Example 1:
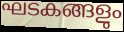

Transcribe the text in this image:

ഘടകങ്ങളും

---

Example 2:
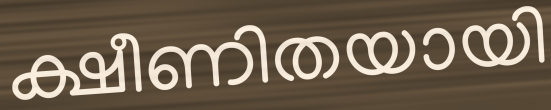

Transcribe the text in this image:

ക്ഷീണിതയായി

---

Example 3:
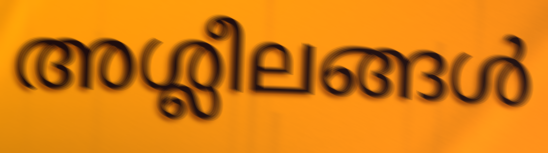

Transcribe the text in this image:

അശ്ലീലങ്ങൾ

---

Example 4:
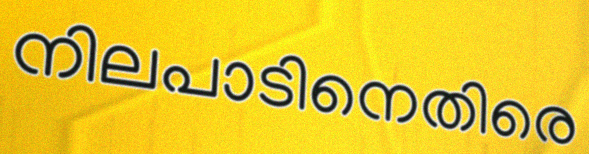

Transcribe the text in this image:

നിലപാടിനെതിരെ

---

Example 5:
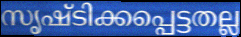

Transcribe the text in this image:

സൃഷ്ടിക്കപ്പെട്ടതല്ല